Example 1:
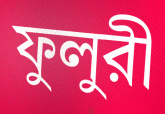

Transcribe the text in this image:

ফুলুরী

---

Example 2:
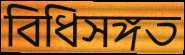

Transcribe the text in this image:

বিধিসঙ্গত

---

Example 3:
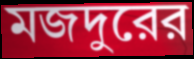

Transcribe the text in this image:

মজদুরের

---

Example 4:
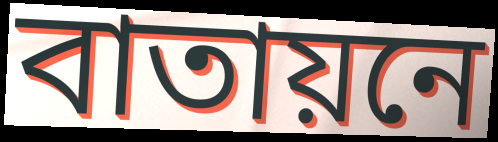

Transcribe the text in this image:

বাতায়নে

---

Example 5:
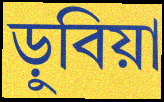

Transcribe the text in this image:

ড়ুবিয়া